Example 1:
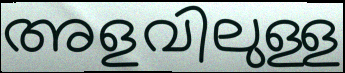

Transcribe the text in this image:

അളവിലുള്ള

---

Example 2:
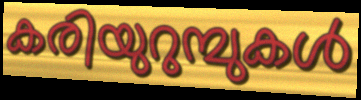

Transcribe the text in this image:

കരിയുറുമ്പുകൾ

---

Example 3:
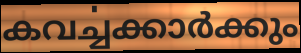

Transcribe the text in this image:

കവൎച്ചക്കാർക്കും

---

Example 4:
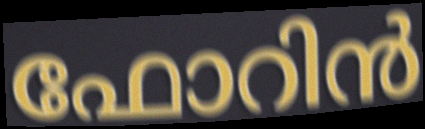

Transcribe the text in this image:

ഫോറിൻ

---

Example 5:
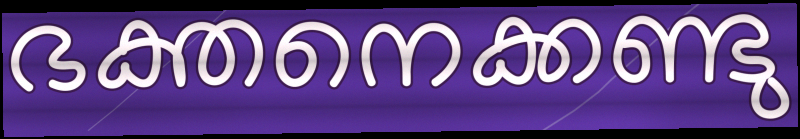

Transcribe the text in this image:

ഭക്തനെക്കണ്ടു